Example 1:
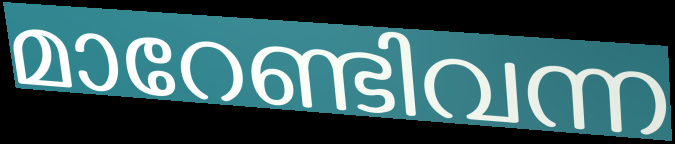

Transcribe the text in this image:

മാറേണ്ടിവന്ന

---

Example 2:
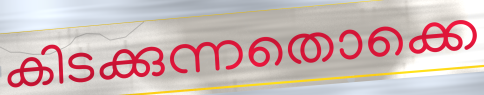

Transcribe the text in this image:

കിടക്കുന്നതൊക്കെ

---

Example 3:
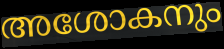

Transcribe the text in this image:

അശോകനും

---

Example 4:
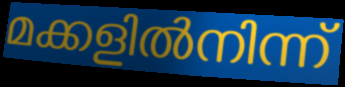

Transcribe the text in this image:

മക്കളിൽനിന്ന്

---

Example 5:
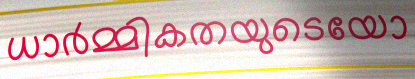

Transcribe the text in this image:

ധാർമ്മികതയുടെയോ